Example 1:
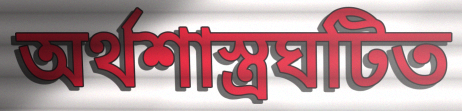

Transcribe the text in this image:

অর্থশাস্ত্রঘটিত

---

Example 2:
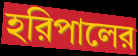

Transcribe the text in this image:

হরিপালের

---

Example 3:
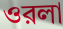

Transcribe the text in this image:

ওরলা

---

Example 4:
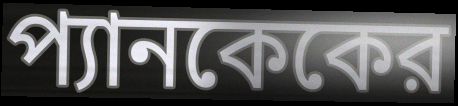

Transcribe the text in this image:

প্যানকেকের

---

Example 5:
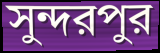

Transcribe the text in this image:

সুন্দরপুর